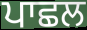
ਪਾਛਲ